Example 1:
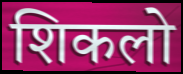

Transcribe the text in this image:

शिकलो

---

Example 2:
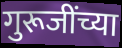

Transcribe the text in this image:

गुरूजींच्या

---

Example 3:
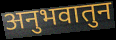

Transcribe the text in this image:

अनुभवातुन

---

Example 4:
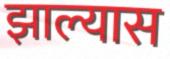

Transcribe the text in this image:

झाल्यास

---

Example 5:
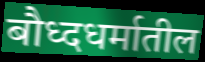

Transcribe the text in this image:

बौध्दधर्मातील